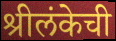
श्रीलंकेची